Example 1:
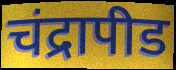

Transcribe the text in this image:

चंद्रापीड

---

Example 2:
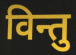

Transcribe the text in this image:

विन्तु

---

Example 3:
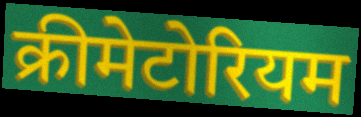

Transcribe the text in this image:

क्रीमेटोरियम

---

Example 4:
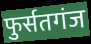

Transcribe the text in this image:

फुर्सतगंज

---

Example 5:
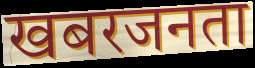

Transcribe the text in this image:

खबरजनता